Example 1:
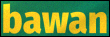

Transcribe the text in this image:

bawan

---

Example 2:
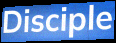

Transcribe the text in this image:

Disciple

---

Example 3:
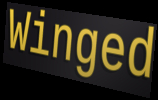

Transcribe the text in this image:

Winged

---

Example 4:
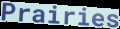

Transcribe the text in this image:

Prairies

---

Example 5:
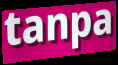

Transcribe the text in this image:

tanpa